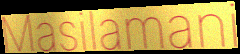
Masilamani